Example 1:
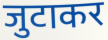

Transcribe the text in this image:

जुटाकर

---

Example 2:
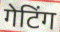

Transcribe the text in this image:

गेटिंग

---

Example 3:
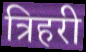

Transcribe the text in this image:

त्रिहरी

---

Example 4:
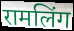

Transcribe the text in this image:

रामलिंग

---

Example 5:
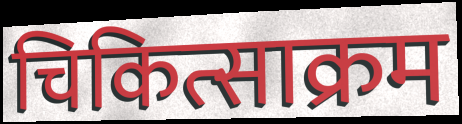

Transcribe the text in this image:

चिकित्साक्रम